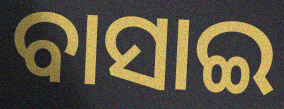
ବାସାଇ